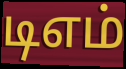
டிஎம்